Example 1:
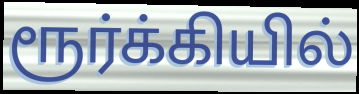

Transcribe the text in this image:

ரூர்க்கியில்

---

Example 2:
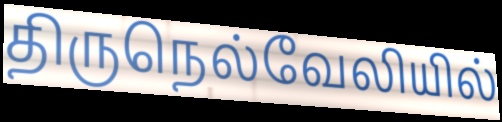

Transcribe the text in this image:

திருநெல்வேலியில்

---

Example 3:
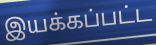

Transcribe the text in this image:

இயக்கப்பட்ட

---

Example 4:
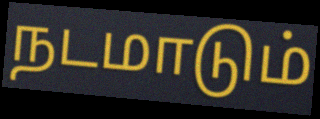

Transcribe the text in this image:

நடமாடும்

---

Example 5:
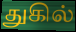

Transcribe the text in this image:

துகில்